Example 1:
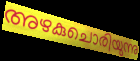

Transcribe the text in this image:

അഴകുചൊരിയുന്നു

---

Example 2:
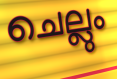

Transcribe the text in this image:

ചെല്ലും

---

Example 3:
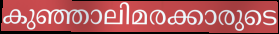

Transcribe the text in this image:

കുഞ്ഞാലിമരക്കാരുടെ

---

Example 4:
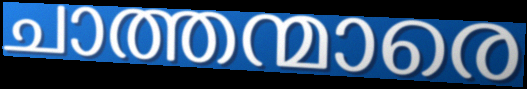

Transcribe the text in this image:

ചാത്തന്മാരെ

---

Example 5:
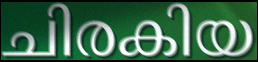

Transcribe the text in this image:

ചിരകിയ